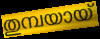
തുമ്പയായ്